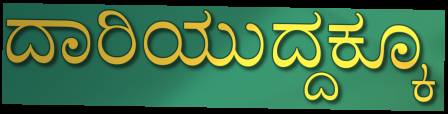
ದಾರಿಯುದ್ದಕ್ಕೂ